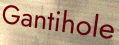
Gantihole